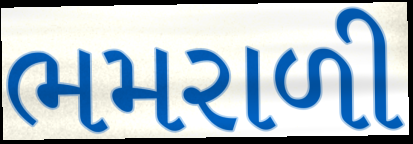
ભમરાળી